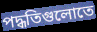
পদ্ধতিগুলোতে